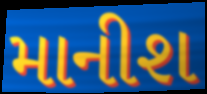
માનીશ